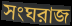
সংঘরাজ